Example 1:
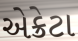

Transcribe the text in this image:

એક્રેટા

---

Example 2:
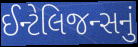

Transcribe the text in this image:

ઈન્ટેલિજન્સનું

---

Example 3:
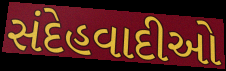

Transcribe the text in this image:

સંદેહવાદીઓ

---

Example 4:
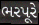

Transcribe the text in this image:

ભરપૂરે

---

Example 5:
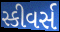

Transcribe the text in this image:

સ્કીવર્સ